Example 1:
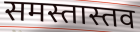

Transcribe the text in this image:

समस्तास्तव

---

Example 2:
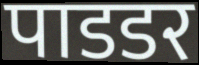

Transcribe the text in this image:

पाडडर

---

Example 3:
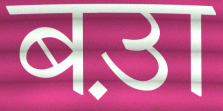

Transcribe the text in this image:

बउ़ा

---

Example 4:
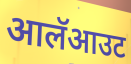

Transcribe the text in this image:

आलॅआउट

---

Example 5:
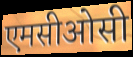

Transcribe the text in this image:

एमसीओसी